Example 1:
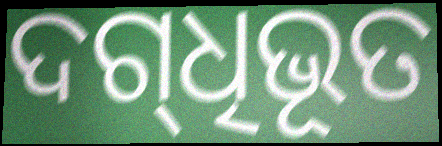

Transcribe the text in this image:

ଦଗ୍‍ଧିଭୂତ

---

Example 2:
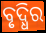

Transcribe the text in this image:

ବୃଦ୍ଧିର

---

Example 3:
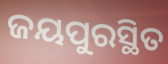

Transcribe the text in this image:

ଜୟପୁରସ୍ଥିତ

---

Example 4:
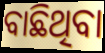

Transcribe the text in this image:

ବାଛିଥିବା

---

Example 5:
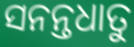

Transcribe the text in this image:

ସନନ୍ତଧାତୁ